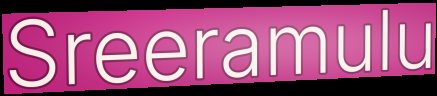
Sreeramulu